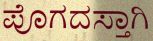
ಪೊಗದಸ್ತಾಗಿ